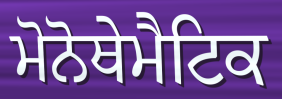
ਮੋਨੋਥੇਮੈਟਿਕ